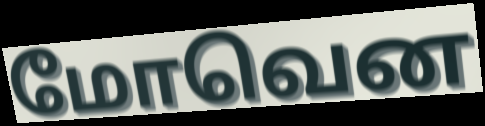
மோவென